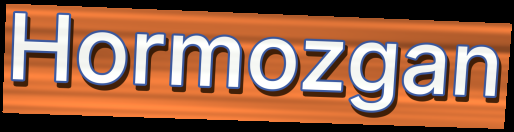
Hormozgan